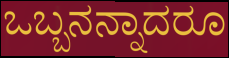
ಒಬ್ಬನನ್ನಾದರೂ